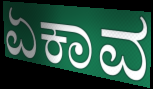
ಏಕಾವ